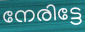
നേരിട്ടേ